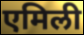
एमिली